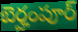
బెర్హంపూర్